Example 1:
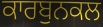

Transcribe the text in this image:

ਕਾਰਬੁਨਕਲ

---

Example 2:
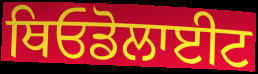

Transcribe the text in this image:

ਥਿਓਡੋਲਾਈਟ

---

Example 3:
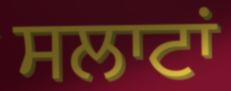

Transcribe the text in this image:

ਸਲਾਟਾਂ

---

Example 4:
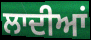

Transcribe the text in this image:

ਲਾਦੀਆਂ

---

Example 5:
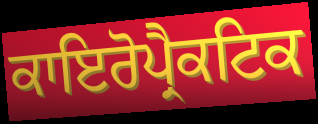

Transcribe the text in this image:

ਕਾਇਰੋਪ੍ਰੈਕਟਿਕ